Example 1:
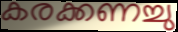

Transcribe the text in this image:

കരക്കണച്ചു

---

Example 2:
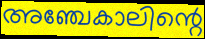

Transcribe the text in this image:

അഞ്ചേകാലിന്റെ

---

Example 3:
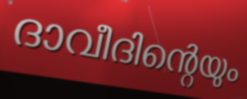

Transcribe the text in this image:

ദാവീദിന്റെയും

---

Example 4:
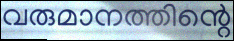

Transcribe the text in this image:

വരുമാനത്തിന്റെ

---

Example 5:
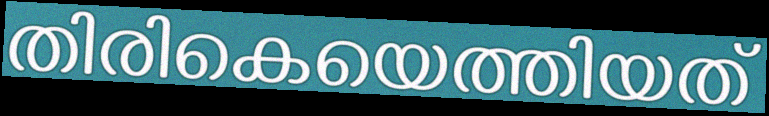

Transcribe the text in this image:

തിരികെയെത്തിയത്